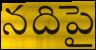
నదిపై